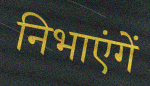
निभाएंगें